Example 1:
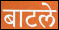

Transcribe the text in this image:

बाटले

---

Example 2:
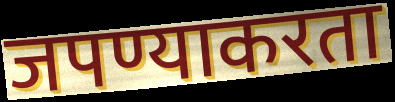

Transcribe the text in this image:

जपण्याकरता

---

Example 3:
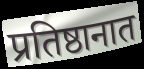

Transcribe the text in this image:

प्रतिष्ठानात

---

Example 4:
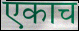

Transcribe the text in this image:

एकाच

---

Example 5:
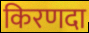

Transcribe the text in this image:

किरणदा